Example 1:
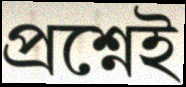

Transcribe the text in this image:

প্রশ্নেই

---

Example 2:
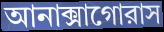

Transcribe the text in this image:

আনাক্সাগোরাস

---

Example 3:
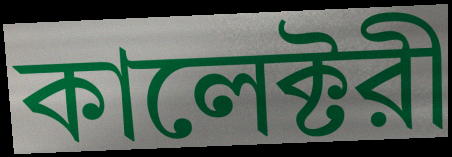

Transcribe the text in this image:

কালেক্টরী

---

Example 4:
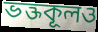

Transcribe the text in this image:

ভক্তকূলও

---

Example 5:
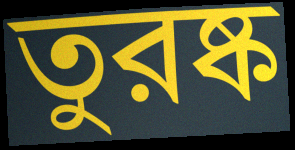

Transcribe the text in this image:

তুরষ্ক